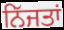
ਨਿੱਜਤਾਂ